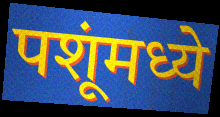
पशूंमध्ये